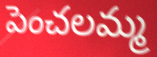
పెంచలమ్మ